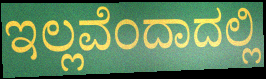
ಇಲ್ಲವೆಂದಾದಲ್ಲಿ